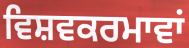
ਵਿਸ਼ਵਕਰਮਾਵਾਂ